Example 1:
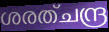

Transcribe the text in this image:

ശരത്ചന്ദ്ര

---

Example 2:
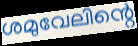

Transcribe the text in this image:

ശമുവേലിന്റെ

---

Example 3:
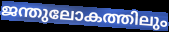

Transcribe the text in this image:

ജന്തുലോകത്തിലും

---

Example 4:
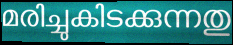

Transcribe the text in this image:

മരിച്ചുകിടക്കുന്നതു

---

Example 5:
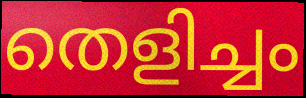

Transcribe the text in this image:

തെളിച്ചം